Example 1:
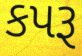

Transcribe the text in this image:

કપરૂ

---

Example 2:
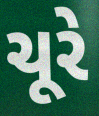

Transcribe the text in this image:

ચૂરે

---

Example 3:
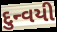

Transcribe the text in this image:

દુન્વયી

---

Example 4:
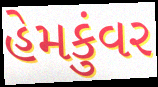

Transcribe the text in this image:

હેમકુંવર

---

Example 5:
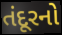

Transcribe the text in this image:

તંદૂરનો